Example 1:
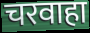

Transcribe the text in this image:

चरवाहा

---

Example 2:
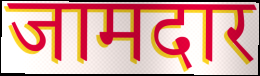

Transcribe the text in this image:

जामदार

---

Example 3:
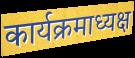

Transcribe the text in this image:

कार्यक्रमाध्यक्ष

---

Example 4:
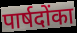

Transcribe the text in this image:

पार्षदोंका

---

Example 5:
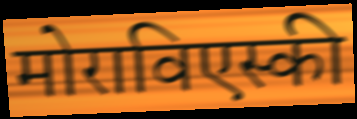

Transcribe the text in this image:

मोराविएस्की